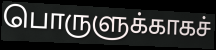
பொருளுக்காகச்